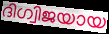
ദിഗ്വിജയായ